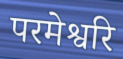
परमेश्वरि